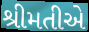
શ્રીમતીએ